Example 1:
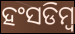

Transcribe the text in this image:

ହଂସଡିମ୍ବ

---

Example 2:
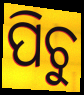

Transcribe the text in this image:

ପିଚୁ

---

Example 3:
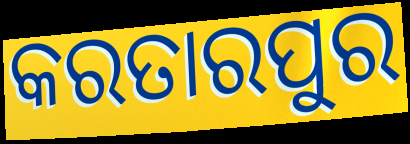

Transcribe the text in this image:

କରତାରପୁର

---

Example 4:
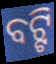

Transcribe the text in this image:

ବଟ୍ଟି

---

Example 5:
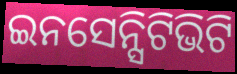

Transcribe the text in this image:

ଇନସେନ୍ସିଟିଭିଟି